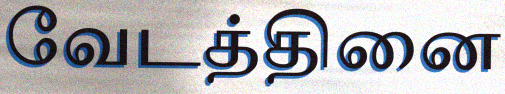
வேடத்தினை